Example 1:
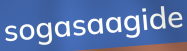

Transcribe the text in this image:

sogasaagide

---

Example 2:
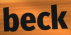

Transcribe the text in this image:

beck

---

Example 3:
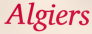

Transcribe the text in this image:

Algiers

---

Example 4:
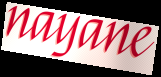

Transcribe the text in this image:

nayane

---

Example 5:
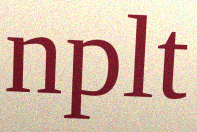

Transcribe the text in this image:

nplt